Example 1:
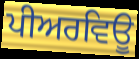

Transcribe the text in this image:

ਪੀਅਰਵਿਊ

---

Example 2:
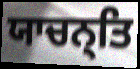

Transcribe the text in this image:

ਯਾਚਨ੍ਤਿ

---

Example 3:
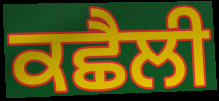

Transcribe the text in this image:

ਕਛੈਲੀ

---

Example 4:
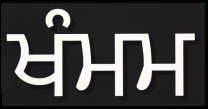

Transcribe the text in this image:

ਖੰਮਮ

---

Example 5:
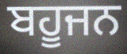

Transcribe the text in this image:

ਬਹੂਜਨ